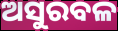
ଅସୁରବଳ